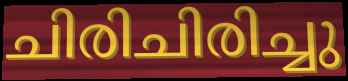
ചിരിചിരിച്ചു